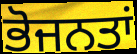
ਭੋਜਨਤਾਂ